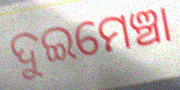
ଦୁଇମେଞ୍ଚା